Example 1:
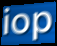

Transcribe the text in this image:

iop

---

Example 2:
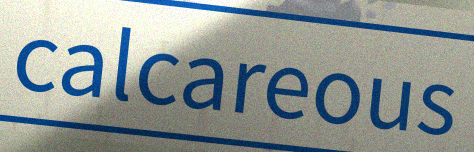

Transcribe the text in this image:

calcareous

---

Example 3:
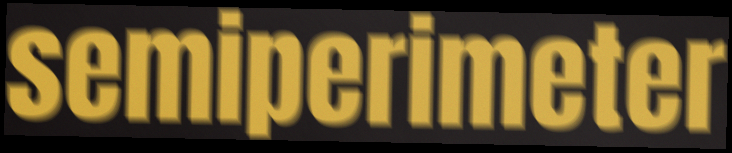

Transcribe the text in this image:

semiperimeter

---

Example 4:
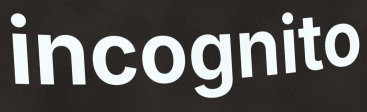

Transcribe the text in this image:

incognito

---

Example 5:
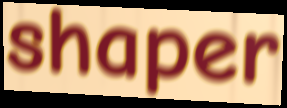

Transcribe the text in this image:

shaper